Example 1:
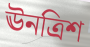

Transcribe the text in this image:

ঊনত্রিশ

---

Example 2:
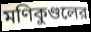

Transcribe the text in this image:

মণিকুণ্ডলের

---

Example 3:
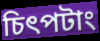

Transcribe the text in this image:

চিৎপটাং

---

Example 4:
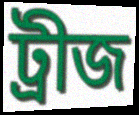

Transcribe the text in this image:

ট্রীজ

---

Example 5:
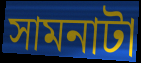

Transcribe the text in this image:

সামনাটা